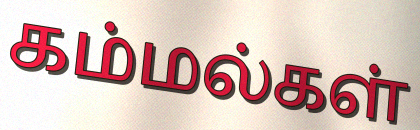
கம்மல்கள்